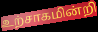
உற்சாகமின்றி